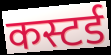
कस्टर्ड